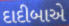
દાદીબાએ